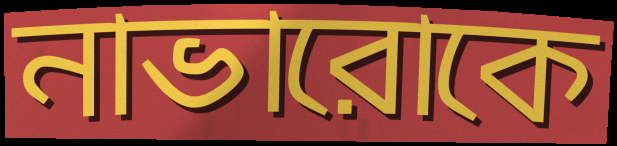
নাভারোকে